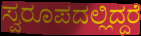
ಸ್ವರೂಪದಲ್ಲಿದ್ದರೆ